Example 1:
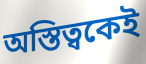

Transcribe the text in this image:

অস্তিত্বকেই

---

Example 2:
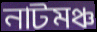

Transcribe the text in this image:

নাটমঞ্চ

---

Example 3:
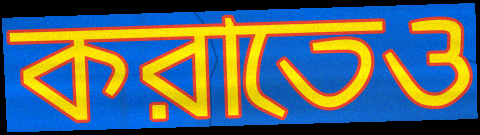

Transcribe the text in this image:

করাতেও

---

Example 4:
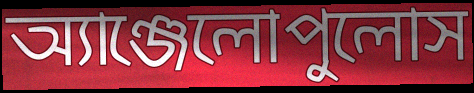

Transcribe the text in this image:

অ্যাঞ্জেলোপুলোস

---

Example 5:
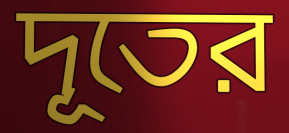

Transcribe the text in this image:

দূতের